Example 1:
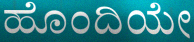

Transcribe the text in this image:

ಹೊಂದಿಯೇ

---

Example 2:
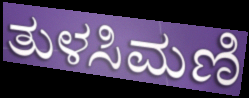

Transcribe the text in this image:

ತುಳಸಿಮಣಿ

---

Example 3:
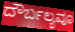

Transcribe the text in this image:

ದೌರ್ಬಲ್ಯವೂ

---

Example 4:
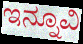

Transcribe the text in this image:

ಇನ್ನೂವಿ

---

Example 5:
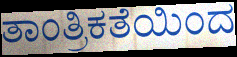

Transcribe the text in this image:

ತಾಂತ್ರಿಕತೆಯಿಂದ